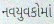
નવયુવકોમાં